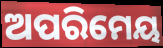
ଅପରିମେୟ